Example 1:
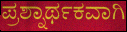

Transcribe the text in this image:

ಪ್ರಶ್ನಾರ್ಥಕವಾಗಿ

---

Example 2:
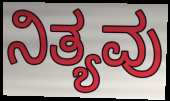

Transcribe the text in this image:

ನಿತ್ಯವು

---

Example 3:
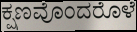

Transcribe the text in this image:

ಕ್ಷಣವೊಂದರೊಳೆ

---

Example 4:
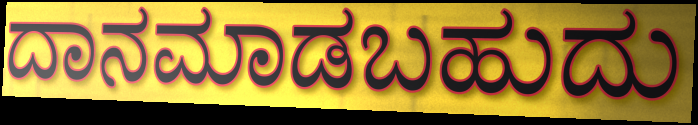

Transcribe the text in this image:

ದಾನಮಾಡಬಹುದು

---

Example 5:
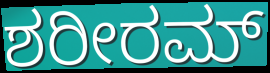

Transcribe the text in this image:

ಶರೀರಮ್